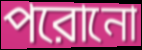
পরোনো